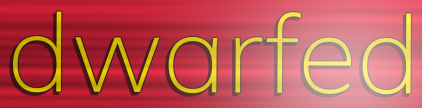
dwarfed